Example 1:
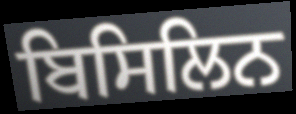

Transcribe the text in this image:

ਬਿਸਿਲਿਨ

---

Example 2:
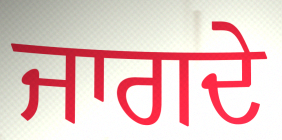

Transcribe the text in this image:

ਜਾਗਦੇ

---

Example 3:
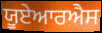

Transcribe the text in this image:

ਯੂਏਆਰਐਸ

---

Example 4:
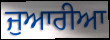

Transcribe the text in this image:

ਜੁਆਰੀਆ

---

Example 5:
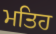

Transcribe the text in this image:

ਮਤਿਹ